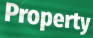
Property